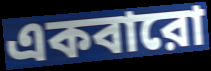
একবারো